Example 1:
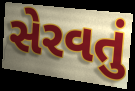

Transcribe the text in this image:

સેરવતું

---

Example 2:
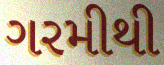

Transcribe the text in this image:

ગરમીથી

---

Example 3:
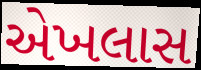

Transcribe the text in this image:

એખલાસ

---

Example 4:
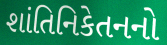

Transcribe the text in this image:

શાંતિનિકેતનનો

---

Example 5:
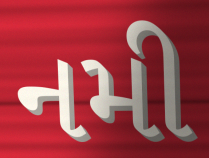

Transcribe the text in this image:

નમી